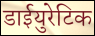
डाईयुरेटिक